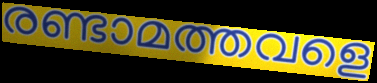
രണ്ടാമത്തവളെ